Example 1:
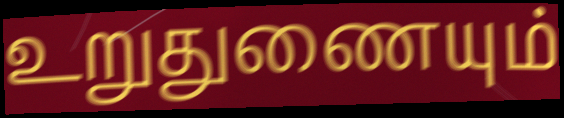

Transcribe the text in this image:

உறுதுணையும்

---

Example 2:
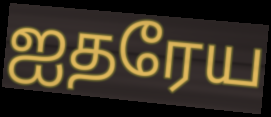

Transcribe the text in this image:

ஐதரேய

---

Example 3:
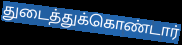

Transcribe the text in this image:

துடைத்துக்கொண்டார்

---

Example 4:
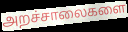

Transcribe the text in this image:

அறச்சாலைகளை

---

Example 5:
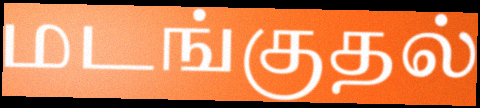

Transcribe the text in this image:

மடங்குதல்